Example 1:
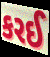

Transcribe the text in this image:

કરઈ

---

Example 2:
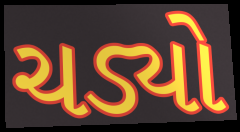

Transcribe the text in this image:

ચડ્યો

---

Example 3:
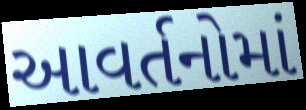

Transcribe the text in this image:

આવર્તનોમાં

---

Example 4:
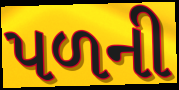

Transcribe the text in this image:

પળની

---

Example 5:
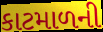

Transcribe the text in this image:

કાટમાળની